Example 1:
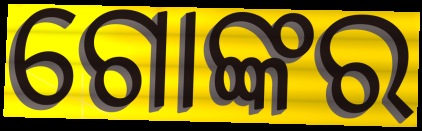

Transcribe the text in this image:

ଗୋଙ୍କର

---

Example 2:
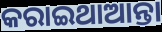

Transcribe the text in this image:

କରାଇଥାଆନ୍ତା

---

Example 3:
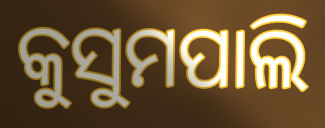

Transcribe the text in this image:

କୁସୁମପାଲି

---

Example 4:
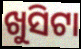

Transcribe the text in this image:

ଖୁସିଟା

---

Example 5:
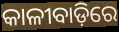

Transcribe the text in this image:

କାଳୀବାଡ଼ିରେ